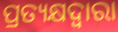
ପ୍ରତ୍ୟକ୍ଷଦ୍ବାରା